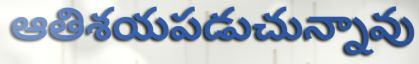
ఆతిశయపడుచున్నావు